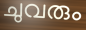
ചുവരും